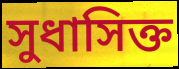
সুধাসিক্ত